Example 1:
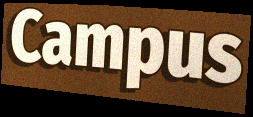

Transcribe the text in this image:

Campus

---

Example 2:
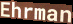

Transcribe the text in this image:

Ehrman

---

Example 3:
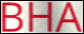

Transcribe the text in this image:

BHA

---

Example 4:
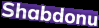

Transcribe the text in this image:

Shabdonu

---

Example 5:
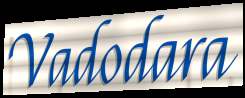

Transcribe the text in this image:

Vadodara